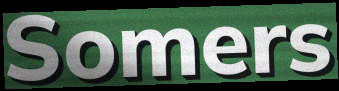
Somers